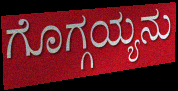
ಗೊಗ್ಗಯ್ಯನು